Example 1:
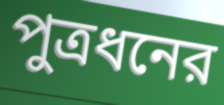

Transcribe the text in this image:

পুত্রধনের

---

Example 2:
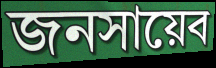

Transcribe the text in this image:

জনসায়েব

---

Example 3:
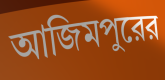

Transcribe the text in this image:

আজিমপুরের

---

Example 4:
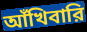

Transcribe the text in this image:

আঁখিবারি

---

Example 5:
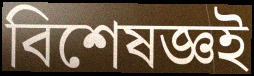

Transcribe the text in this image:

বিশেষজ্ঞই